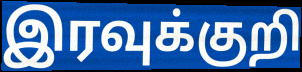
இரவுக்குறி